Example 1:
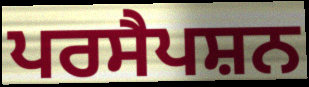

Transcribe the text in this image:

ਪਰਸੈਪਸ਼ਨ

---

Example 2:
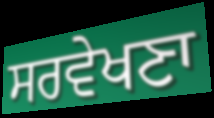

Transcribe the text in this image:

ਸਰਵੇਖਣਾ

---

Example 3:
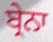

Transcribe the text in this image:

ਬ੍ਰੇਨਾ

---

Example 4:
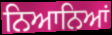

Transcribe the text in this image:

ਨਿਆਨਿਆਂ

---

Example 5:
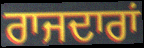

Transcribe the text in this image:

ਰਾਜਦਾਰਾਂ